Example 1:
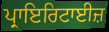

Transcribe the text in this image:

ਪ੍ਰਾਇਰਿਟਾਈਜ਼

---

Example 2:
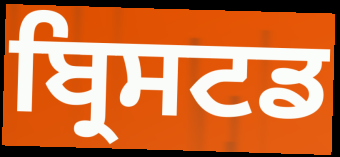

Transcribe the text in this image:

ਬ੍ਰਿਸਟਡ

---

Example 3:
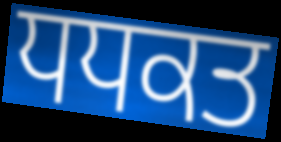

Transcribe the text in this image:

ਧਧਕਤ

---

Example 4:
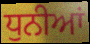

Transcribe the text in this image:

ਧੁਨੀਆਂ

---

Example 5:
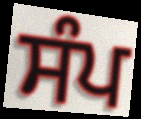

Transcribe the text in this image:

ਸੰਪ